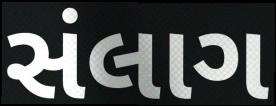
સંલાગ